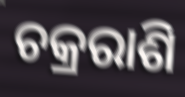
ଚକ୍ରରାଶି